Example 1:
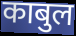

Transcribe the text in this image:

काबुल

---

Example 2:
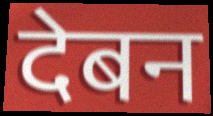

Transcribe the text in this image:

देबन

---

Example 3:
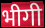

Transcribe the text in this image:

भीगी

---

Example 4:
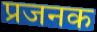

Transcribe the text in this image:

प्रजनक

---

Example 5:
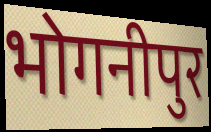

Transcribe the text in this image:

भोगनीपुर